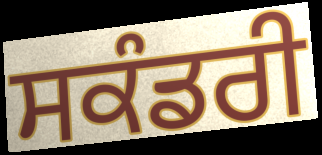
ਸਕੰਡਰੀ